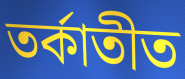
তর্কাতীত